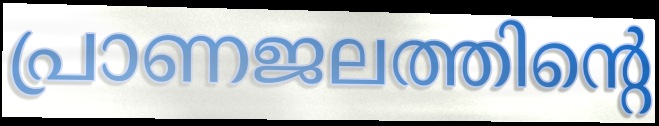
പ്രാണജലത്തിന്റെ